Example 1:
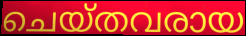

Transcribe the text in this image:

ചെയ്തവരായ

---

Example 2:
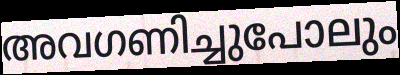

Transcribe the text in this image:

അവഗണിച്ചുപോലും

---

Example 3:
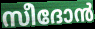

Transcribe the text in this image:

സീദോൻ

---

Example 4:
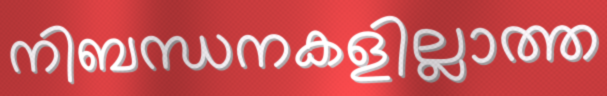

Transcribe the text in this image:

നിബന്ധനകളില്ലാത്ത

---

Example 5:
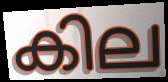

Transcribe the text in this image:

കില